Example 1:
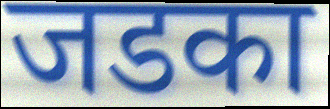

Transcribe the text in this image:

जडका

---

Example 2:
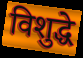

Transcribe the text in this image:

विशुद्धे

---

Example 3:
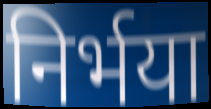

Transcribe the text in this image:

निर्भया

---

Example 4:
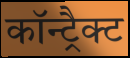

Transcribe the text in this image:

कॉन्‍ट्रैक्‍ट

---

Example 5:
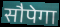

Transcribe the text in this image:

सौपेगा